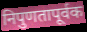
निपुणतापूर्वक